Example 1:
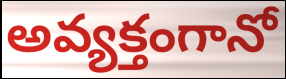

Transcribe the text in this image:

అవ్యక్తంగానో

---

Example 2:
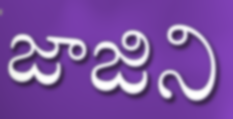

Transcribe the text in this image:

జాజిని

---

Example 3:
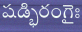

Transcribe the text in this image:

షడ్భిరంగైః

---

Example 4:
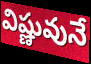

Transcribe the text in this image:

విష్ణువునే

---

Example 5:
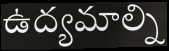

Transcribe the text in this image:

ఉద్యమాల్ని